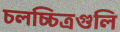
চলচ্চিত্রগুলি